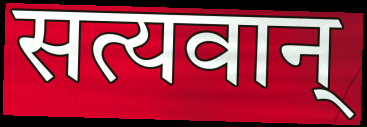
सत्यवान्